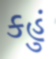
કહું